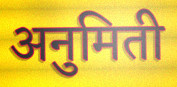
अनुमिती